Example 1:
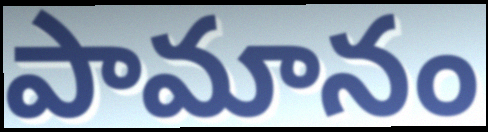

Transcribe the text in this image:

పామానం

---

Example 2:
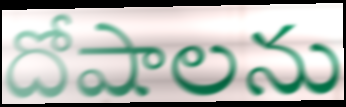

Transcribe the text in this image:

దోషాలను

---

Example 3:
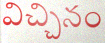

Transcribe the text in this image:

విచ్చినం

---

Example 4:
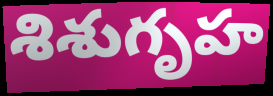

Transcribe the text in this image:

శిశుగృహ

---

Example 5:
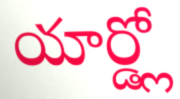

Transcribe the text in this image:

యార్డ్లో